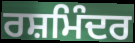
ਰਸ਼ਮਿੰਦਰ